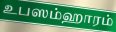
உபஸம்ஹாரம்